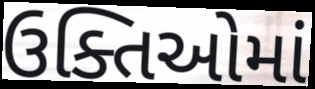
ઉક્તિઓમાં